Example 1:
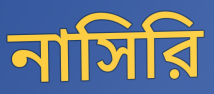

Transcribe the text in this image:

নাসিরি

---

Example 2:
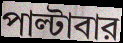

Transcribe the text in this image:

পাল্টাবার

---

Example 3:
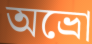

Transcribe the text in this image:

অভ্রো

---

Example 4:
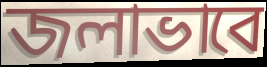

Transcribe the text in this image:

জলাভাবে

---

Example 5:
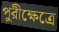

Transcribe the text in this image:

পুরীক্ষেত্রে